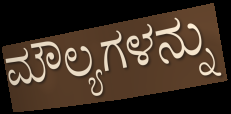
ಮೌಲ್ಯಗಳನ್ನು